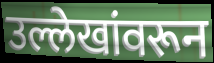
उल्लेखांवरून